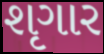
શૃગાર